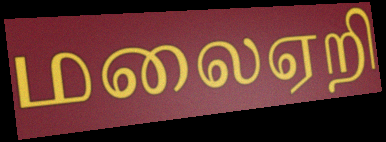
மலைஏறி